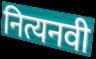
नित्यनवी